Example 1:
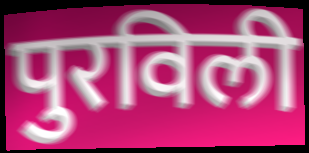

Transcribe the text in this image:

पुरविली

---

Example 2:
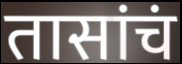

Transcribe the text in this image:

तासांचं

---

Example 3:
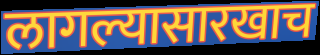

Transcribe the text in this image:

लागल्यासारखाच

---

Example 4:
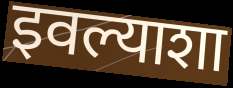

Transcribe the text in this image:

इवल्याशा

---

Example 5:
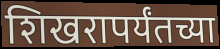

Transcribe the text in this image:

शिखरापर्यंतच्या